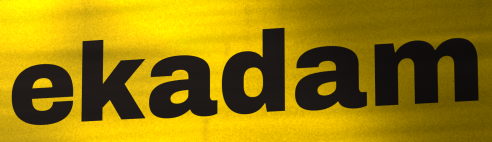
ekadam